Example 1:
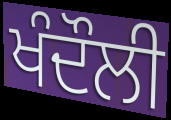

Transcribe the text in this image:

ਖੰਦੌਲੀ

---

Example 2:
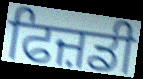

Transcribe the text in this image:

ਫਿਜ਼ਡੀ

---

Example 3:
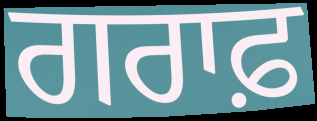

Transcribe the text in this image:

ਗਰਾਫ਼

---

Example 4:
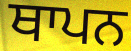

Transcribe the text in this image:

ਥਾਪਨ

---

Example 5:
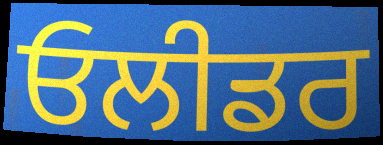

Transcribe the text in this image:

ਓਲੀਡਰ